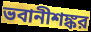
ভবানীশঙ্কর